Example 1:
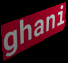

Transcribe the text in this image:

ghani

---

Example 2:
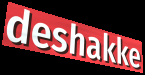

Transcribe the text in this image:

deshakke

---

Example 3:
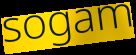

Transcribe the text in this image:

sogam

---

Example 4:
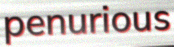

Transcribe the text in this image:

penurious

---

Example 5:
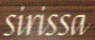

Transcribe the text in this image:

sirissa